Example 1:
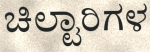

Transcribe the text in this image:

ಚಿಲ್ಟಾರಿಗಳ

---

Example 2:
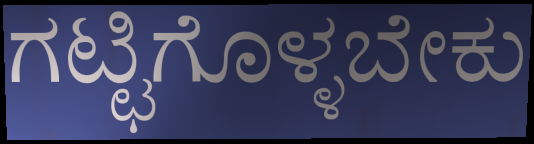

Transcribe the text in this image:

ಗಟ್ಟಿಗೊಳ್ಳಬೇಕು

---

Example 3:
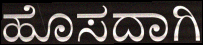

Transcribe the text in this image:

ಹೊಸದಾಗಿ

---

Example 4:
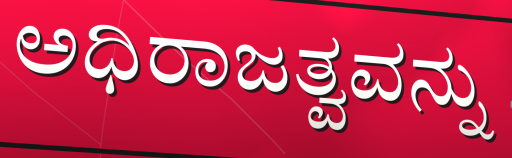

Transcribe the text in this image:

ಅಧಿರಾಜತ್ವವನ್ನು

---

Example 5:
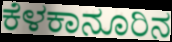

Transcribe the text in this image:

ಕೆಳಕಾನೂರಿನ